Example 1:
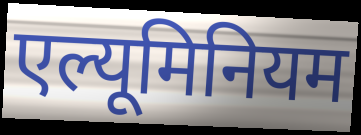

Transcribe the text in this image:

एल्यूमिनियम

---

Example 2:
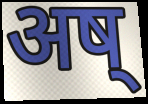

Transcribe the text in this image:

अष्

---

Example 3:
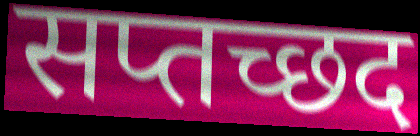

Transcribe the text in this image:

सप्तच्छद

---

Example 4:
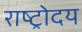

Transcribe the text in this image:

राष्ट्रोदय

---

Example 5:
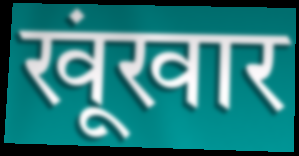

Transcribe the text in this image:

खूंखार